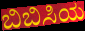
ಬಿಬಿಸಿಯ